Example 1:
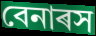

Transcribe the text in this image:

বেনাৰস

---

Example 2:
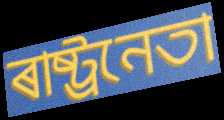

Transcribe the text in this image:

ৰাষ্ট্ৰনেতা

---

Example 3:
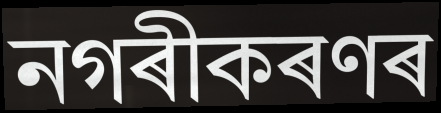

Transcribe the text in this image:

নগৰীকৰণৰ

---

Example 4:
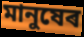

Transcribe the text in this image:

মানুষেৰ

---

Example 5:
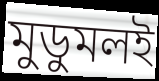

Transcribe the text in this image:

মুডুমলই